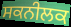
ਸਕਨੀਲਕ